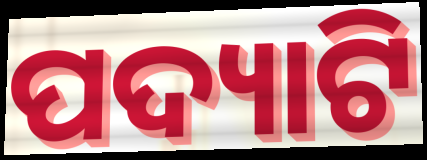
ପଦ୍ୟାଟି